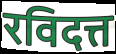
रविदत्त